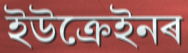
ইউক্ৰেইনৰ